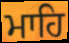
ਮਾਹਿ